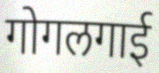
गोगलगाई